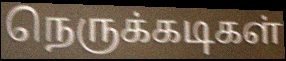
நெருக்கடிகள்